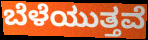
ಬೆಳೆಯುತ್ತವೆ